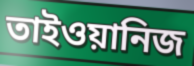
তাইওয়ানিজ